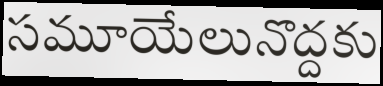
సమూయేలునొద్దకు